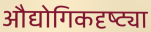
औद्योगिकदृष्ट्या